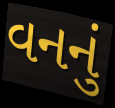
વનનું